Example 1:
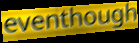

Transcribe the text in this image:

eventhough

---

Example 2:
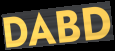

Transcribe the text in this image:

DABD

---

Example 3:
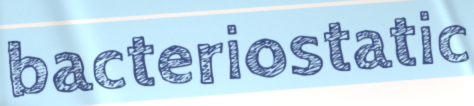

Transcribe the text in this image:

bacteriostatic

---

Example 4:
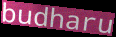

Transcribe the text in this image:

budharu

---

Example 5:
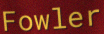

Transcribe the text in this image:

Fowler